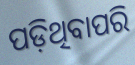
ପଡ଼ିଥିବାପରି